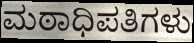
ಮಠಾಧಿಪತಿಗಳು